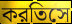
করতিসে